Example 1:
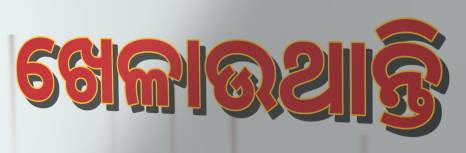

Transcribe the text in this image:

ଖେଳାଉଥାନ୍ତି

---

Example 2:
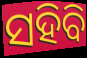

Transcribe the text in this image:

ସହିବି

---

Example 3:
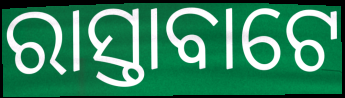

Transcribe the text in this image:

ରାସ୍ତାବାଟେ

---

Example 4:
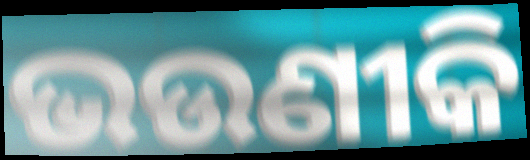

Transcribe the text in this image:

ଭଉଣୀକି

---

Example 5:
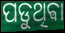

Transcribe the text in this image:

ପଡୁଥିଵା